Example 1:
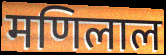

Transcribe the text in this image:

मणिलाल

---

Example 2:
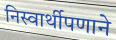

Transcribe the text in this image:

निस्वार्थीपणाने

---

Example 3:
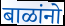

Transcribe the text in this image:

बाळांनो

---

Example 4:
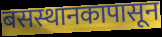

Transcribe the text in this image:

बसस्थानकापासून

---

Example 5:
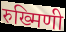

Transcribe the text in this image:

रुख्मिणी